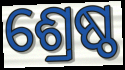
ଶ୍ରେଷ୍ଠ